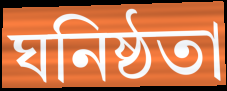
ঘনিষ্ঠতা